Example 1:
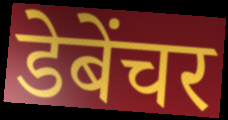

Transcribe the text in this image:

डेबेंचर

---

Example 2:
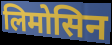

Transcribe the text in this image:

लिमोसिन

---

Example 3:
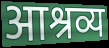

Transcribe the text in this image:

आश्रव्य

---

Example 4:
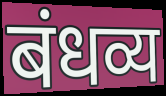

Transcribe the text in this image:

बंधव्य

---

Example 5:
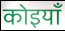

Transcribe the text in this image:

कोइयाँ